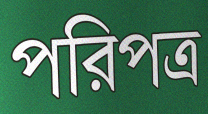
পরিপত্র